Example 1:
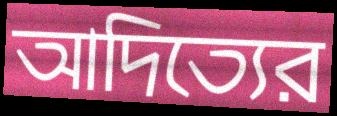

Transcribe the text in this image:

আদিত্যের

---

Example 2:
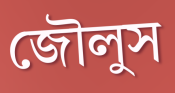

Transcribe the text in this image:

জৌলুস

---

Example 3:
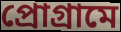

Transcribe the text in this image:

প্রোগ্রামে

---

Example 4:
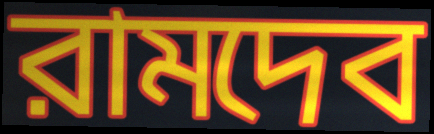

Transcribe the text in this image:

রামদেব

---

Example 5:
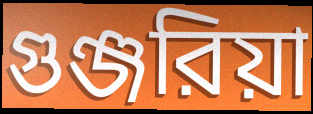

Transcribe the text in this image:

গুঞ্জরিয়া